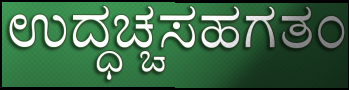
ಉದ್ಧಚ್ಚಸಹಗತಂ